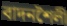
বাদনশৈলী